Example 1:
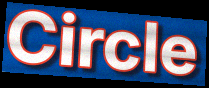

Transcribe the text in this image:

Circle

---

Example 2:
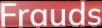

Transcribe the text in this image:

Frauds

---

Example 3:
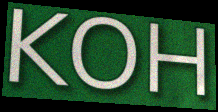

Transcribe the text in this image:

KOH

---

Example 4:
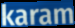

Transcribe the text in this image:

karam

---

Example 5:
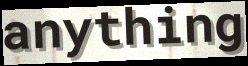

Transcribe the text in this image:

anything